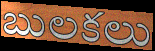
బులకలు